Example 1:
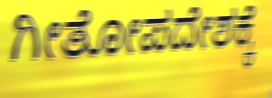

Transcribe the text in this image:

ಗೀತೋಪದೇಶಕ್ಕೆ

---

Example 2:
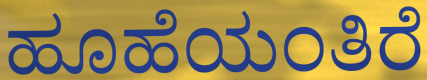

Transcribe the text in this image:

ಹೂಹೆಯಂತಿರೆ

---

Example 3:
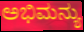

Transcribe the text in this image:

ಅಭಿಮನ್ಯು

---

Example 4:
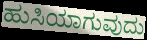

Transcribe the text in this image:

ಹುಸಿಯಾಗುವುದು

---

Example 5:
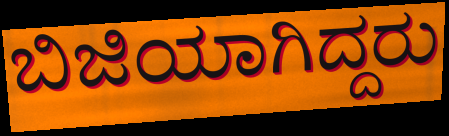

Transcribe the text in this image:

ಬಿಜಿಯಾಗಿದ್ದರು